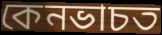
কেনভাচত